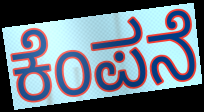
ಕೆಂಪನೆ